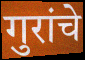
गुरांचे